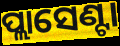
ପ୍ଲାସେଣ୍ଟା